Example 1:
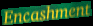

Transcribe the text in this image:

Encashment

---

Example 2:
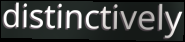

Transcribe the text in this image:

distinctively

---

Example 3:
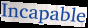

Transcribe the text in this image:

Incapable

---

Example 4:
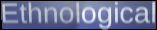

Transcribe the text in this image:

Ethnological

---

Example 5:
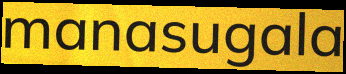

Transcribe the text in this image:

manasugala